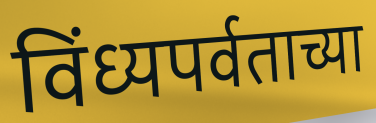
विंध्यपर्वताच्या